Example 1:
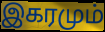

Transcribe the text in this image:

இகரமும்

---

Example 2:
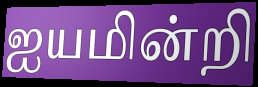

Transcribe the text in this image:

ஐயமின்றி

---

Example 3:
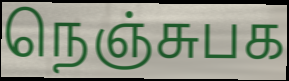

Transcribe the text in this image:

நெஞ்சுபக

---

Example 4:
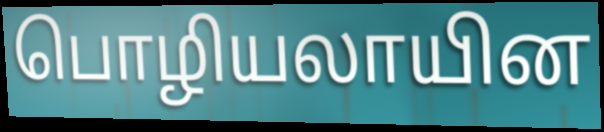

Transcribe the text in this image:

பொழியலாயின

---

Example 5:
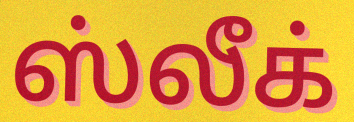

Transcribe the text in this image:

ஸ்லீக்